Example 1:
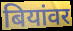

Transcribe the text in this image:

बियांवर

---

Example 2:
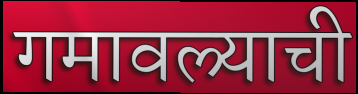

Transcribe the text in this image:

गमावल्याची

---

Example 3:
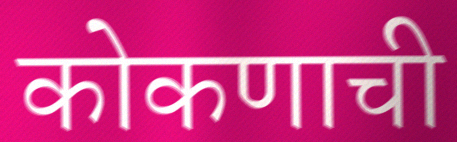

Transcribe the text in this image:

कोकणाची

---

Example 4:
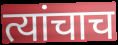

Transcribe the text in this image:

त्यांचाच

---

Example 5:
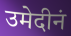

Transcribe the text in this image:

उमेदीनं